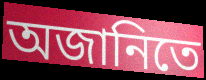
অজানিতে